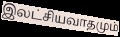
இலட்சியவாதமும்